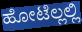
ಹೋಟೆಲ್ಲಲ್ಲಿ